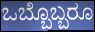
ಒಬ್ಬೊಬ್ಬರೂ